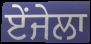
ਏਂਜੇਲਾ